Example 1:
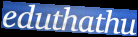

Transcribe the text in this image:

eduthathu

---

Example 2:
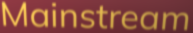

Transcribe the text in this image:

Mainstream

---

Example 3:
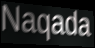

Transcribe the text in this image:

Naqada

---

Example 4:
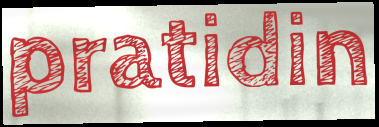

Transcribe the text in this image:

pratidin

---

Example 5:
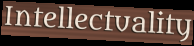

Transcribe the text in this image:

Intellectuality